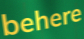
behere